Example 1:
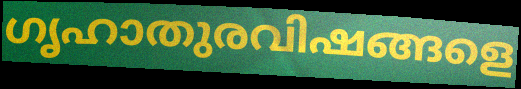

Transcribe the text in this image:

ഗൃഹാതുരവിഷങ്ങളെ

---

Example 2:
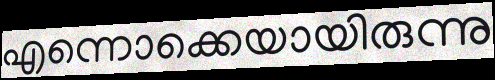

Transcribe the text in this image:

എന്നൊക്കെയായിരുന്നു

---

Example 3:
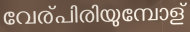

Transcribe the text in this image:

വേര്പിരിയുമ്പോള്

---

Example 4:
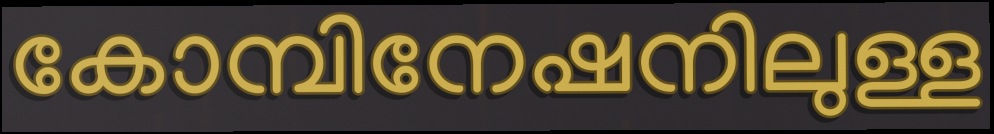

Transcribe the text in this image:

കോമ്പിനേഷനിലുള്ള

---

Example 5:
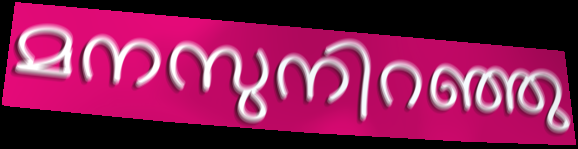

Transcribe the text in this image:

മനസുനിറഞ്ഞു